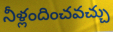
నీళ్లందించవచ్చు